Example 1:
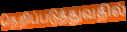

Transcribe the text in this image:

நெறிப்படுத்துவதில்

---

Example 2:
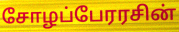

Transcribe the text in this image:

சோழப்பேரரசின்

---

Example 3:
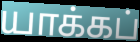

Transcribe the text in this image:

யாக்கப்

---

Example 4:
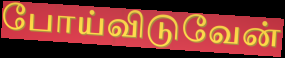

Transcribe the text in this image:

போய்விடுவேன்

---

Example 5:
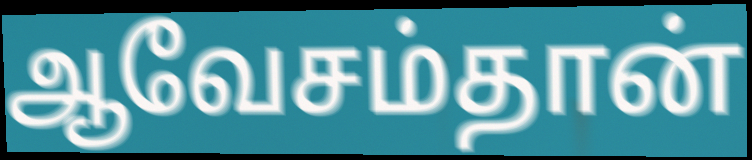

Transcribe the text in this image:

ஆவேசம்தான்